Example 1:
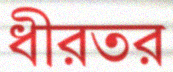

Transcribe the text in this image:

ধীরতর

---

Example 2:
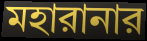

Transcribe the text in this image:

মহারানার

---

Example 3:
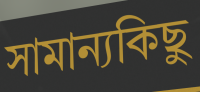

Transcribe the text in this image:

সামান্যকিছু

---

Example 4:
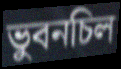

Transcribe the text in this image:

ভুবনচিল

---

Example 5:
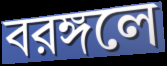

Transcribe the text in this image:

বরঙ্গলে